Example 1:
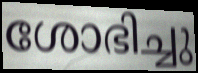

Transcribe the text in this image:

ശോഭിച്ചു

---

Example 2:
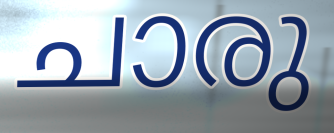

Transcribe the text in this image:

ചാരു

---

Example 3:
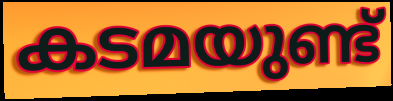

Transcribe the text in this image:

കടമയുണ്ട്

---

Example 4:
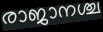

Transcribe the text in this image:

രാജാനശ്ച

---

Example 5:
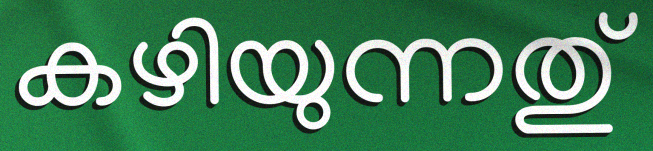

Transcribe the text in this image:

കഴിയുന്നതു്